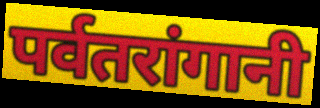
पर्वतरांगानी